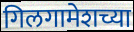
गिलगामेशच्या